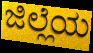
ಜಿಲ್ಲೆಯ